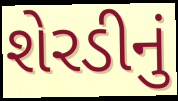
શેરડીનું